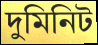
দুমিনিট